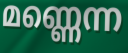
മണ്ണെന്ന